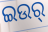
ଇଉର୍